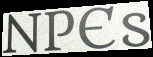
NPEs